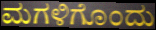
ಮಗಳಿಗೊಂದು